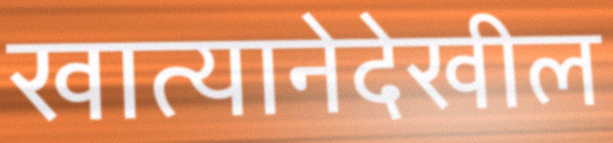
खात्यानेदेखील